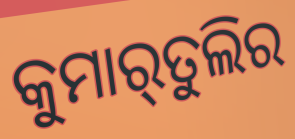
କୁମାର୍‌ତୁଲିର